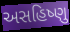
અસહિષ્ણુ